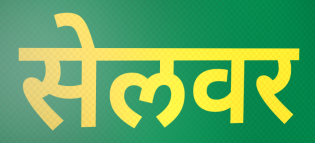
सेलवर